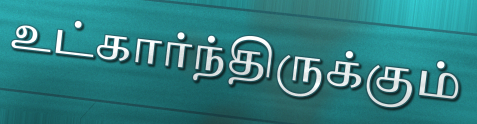
உட்கார்ந்திருக்கும்